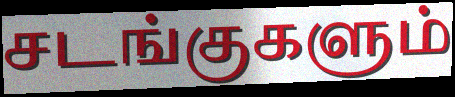
சடங்குகளும்